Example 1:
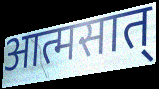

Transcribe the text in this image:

आत्मसात्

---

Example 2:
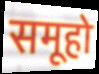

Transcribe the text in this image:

समूहो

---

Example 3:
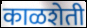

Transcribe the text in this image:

काळशेती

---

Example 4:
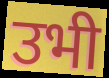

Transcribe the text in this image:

उभी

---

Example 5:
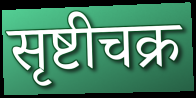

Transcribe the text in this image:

सृष्टीचक्र